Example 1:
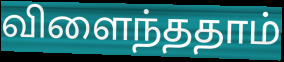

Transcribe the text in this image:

விளைந்ததாம்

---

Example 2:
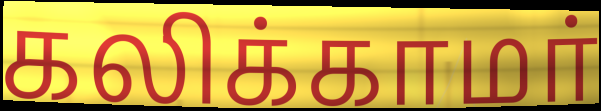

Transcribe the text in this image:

கலிக்காமர்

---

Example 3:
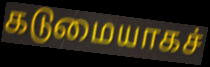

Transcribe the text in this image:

கடுமையாகச்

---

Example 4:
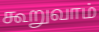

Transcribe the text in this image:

கூறுவாம்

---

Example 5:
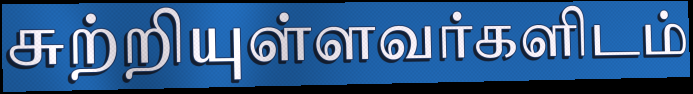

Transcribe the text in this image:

சுற்றியுள்ளவர்களிடம்